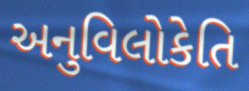
અનુવિલોકેતિ